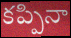
కప్పినా